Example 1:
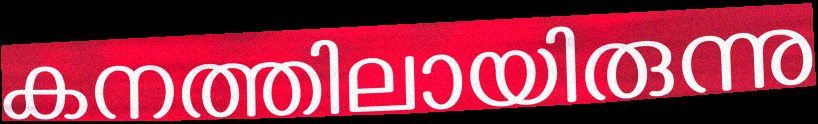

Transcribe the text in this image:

കനത്തിലായിരുന്നു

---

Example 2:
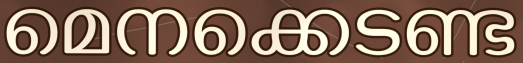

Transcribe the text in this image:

മെനക്കെടണ്ട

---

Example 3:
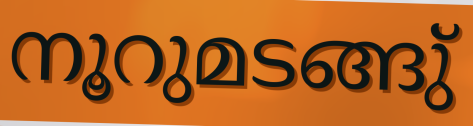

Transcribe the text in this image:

നൂറുമടങ്ങു്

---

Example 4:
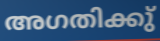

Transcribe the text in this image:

അഗതിക്കു്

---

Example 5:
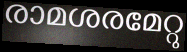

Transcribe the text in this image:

രാമശരമേറ്റു